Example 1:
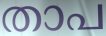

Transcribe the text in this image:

താപ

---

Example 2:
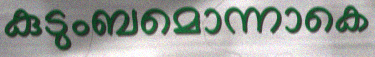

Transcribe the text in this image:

കുടുംബമൊന്നാകെ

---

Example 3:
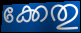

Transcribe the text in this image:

ക്കേതു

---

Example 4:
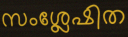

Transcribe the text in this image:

സംശ്ലേഷിത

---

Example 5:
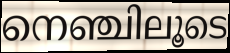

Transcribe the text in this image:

നെഞ്ചിലൂടെ